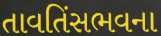
તાવતિંસભવના